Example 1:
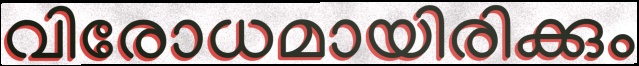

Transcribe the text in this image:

വിരോധമായിരിക്കും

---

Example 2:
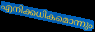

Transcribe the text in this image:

എനിക്കധികമൊന്നും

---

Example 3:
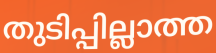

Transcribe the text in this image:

തുടിപ്പില്ലാത്ത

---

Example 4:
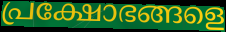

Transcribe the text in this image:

പ്രക്ഷോഭങ്ങളെ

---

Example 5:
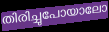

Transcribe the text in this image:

തിരിച്ചുപോയാലോ